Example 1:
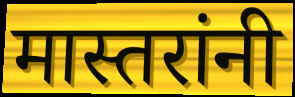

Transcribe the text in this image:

मास्तरांनी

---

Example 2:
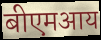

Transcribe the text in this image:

बीएमआय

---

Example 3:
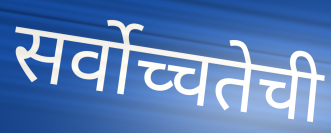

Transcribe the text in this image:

सर्वोच्चतेची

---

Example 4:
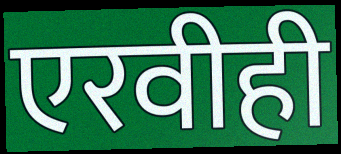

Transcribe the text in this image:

एरवीही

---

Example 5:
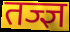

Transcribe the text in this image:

तज्‍ज्ञ